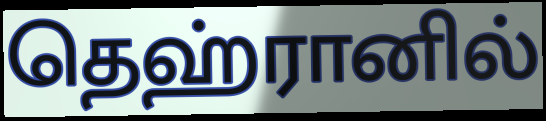
தெஹ்ரானில்